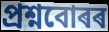
প্ৰশ্নবোৰৰ